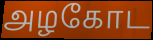
அழகோட